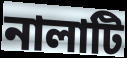
নালাটি